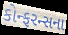
કોન્ફરન્સના